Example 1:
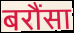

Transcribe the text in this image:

बरौंसा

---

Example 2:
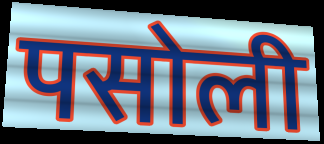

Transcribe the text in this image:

पसोली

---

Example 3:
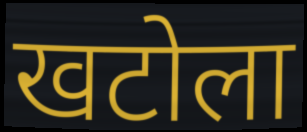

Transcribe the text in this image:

खटोला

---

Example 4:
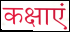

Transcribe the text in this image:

कक्षाएं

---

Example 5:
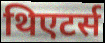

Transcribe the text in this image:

थिएटर्स